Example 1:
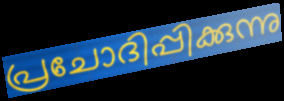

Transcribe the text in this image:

പ്രചോദിപ്പിക്കുന്നു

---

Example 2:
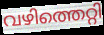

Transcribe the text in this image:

വഴിത്തെറ്റി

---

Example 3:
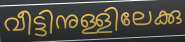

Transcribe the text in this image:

വീട്ടിനുള്ളിലേക്കു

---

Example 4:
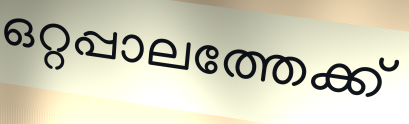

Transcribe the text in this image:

ഒറ്റപ്പാലത്തേക്ക്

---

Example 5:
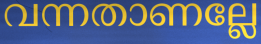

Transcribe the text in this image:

വന്നതാണല്ലേ